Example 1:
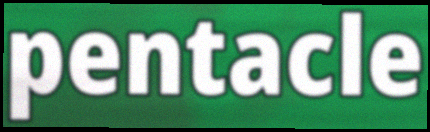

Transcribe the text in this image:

pentacle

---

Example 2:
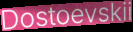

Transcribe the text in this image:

Dostoevskii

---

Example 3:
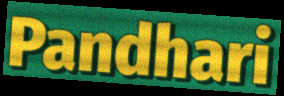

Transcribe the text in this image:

Pandhari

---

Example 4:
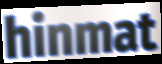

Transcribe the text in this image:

hinmat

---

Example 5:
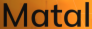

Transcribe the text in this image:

Matal